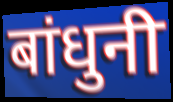
बांधुनी